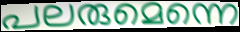
പലരുമെന്നെ